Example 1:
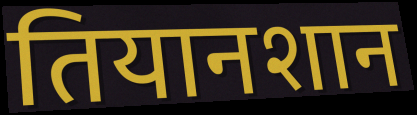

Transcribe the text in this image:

तियानशान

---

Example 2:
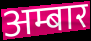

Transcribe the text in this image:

अम्बार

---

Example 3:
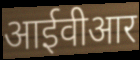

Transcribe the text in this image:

आईवीआर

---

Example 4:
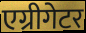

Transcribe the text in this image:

एग्रीगेटर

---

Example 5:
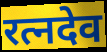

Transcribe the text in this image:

रत्नदेव